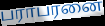
பராபரனை